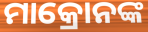
ମାକ୍ରୋନଙ୍କ